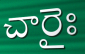
చారైః